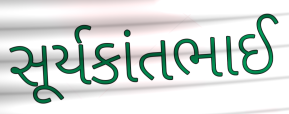
સૂર્યકાંતભાઈ